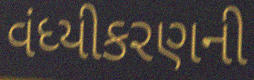
વંધ્યીકરણની